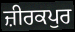
ਜ਼ੀਰਕਪੁਰ